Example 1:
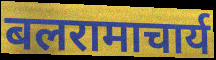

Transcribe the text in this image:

बलरामाचार्य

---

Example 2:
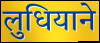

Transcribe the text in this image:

लुधियाने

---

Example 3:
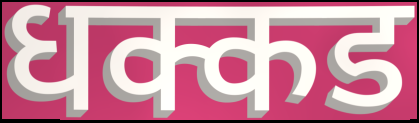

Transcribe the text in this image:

धक्कड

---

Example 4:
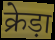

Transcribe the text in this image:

क्रेड़ा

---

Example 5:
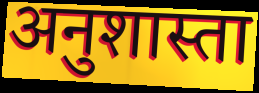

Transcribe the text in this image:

अनुशास्ता